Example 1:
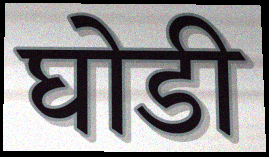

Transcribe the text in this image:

घोडी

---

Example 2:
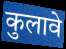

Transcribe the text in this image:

कुलावे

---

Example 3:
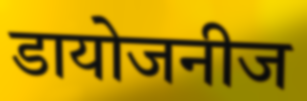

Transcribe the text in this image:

डायोजनीज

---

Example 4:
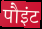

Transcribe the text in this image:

पौइंट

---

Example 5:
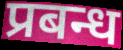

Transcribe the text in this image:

प्रबन्ध